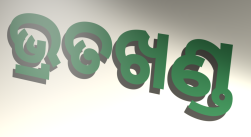
ଭ୍ରତଖଣ୍ଡ